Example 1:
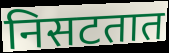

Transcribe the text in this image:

निसटतात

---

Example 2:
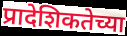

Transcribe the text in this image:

प्रादेशिकतेच्या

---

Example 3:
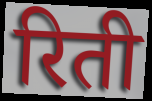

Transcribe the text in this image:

रिती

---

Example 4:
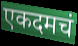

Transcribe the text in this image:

एकदमचं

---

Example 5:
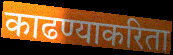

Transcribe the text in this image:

काढण्याकरिता